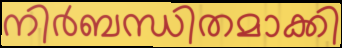
നിർബന്ധിതമാക്കി